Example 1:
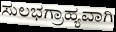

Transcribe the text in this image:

ಸುಲಭಗ್ರಾಹ್ಯವಾಗಿ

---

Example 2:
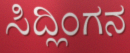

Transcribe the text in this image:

ಸಿದ್ಲಿಂಗನ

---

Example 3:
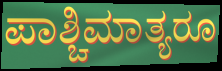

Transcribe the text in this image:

ಪಾಶ್ಚಿಮಾತ್ಯರೂ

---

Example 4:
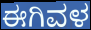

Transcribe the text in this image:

ಈಗಿವಳ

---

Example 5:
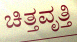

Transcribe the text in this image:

ಚಿತ್ತವೃತ್ತಿ